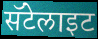
सॅटेलाइट